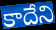
కాదేని